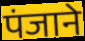
पंजाने